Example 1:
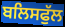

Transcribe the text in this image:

ਬਲਿਸਫੁੱਲ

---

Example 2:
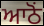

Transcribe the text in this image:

ਆਠੋਂ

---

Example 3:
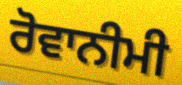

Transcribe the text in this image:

ਰੋਵਾਨੀਮੀ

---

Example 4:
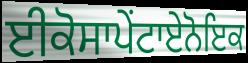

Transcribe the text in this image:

ਈਕੋਸਾਪੇਂਟਾਏਨੋਇਕ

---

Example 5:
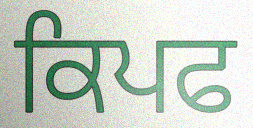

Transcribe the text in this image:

ਕਿਪਫ